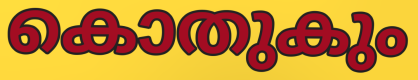
കൊതുകും